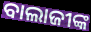
ବାଲାଜୀଙ୍କ